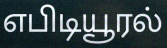
எபிடியூரல்